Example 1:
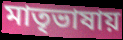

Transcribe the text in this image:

মাতৃভাষায়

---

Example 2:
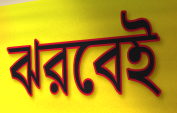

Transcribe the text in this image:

ঝরবেই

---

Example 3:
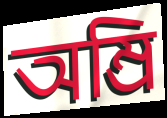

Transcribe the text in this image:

অম্রি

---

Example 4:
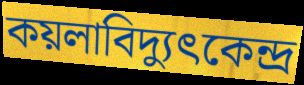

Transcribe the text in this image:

কয়লাবিদ্যুৎকেন্দ্র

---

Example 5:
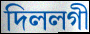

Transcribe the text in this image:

দিললগী